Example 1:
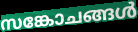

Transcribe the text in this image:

സങ്കോചങ്ങൾ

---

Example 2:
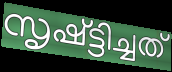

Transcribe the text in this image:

സൃഷ്ട്ടിച്ചത്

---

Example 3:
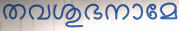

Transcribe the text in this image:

തവശുഭനാമേ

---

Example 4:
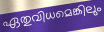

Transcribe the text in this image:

ഏതുവിധമെങ്കിലും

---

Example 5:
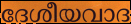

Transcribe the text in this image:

ദേശീയവാദ